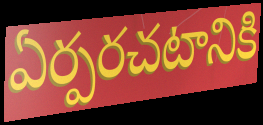
ఏర్పరచటానికి